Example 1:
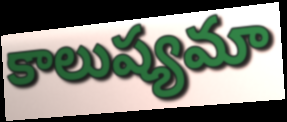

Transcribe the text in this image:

కాలుష్యమా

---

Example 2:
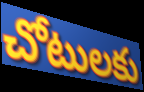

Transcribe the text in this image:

చోటులకు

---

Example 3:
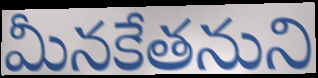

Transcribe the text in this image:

మీనకేతనుని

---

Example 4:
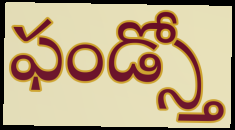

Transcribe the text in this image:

ఫండ్స్తో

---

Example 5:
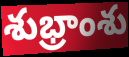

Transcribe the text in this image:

శుభ్రాంశు